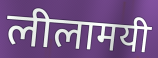
लीलामयी